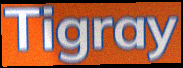
Tigray